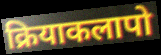
क्रियाकलापो